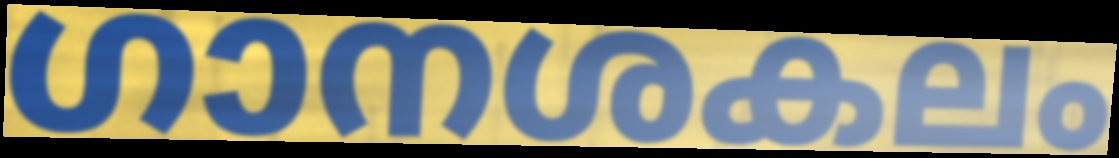
ഗാനശകലം